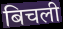
बिचली